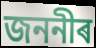
জননীৰ